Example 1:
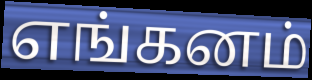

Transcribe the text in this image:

எங்கனம்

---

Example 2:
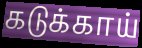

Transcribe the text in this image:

கடுக்காய்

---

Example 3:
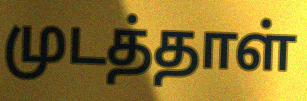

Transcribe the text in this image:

முடத்தாள்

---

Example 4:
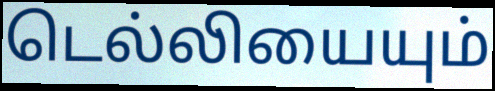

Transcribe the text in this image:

டெல்லியையும்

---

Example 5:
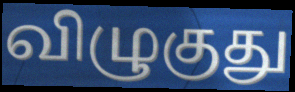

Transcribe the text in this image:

விழுகுது